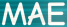
MAE